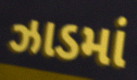
ઝાડમાં